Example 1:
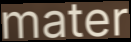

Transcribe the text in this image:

mater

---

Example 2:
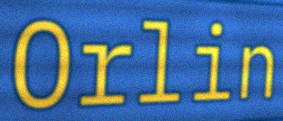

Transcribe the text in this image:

Orlin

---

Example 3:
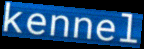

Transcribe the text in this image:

kennel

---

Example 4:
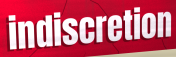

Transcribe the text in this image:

indiscretion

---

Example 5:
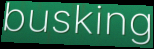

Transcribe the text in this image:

busking